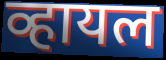
व्हायल